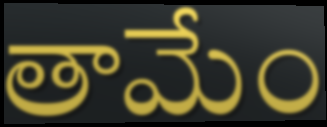
తామేం